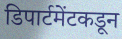
डिपार्टमेंटकडून